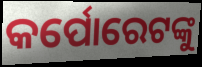
କର୍ପୋରେଟଙ୍କୁ